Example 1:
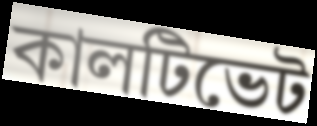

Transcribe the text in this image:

কালটিভেট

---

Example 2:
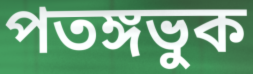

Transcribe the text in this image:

পতঙ্গভুক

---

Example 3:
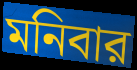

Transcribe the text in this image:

মনিবার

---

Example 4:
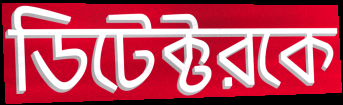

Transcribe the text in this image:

ডিটেক্টরকে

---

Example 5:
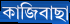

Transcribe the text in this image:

কাজিবাছা